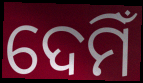
ଦେମିଁ